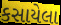
કસાયેલા